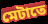
মেটাতে